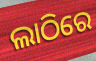
ଲାଠିରେ